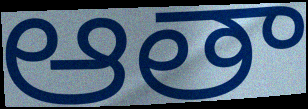
ఆతా